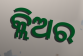
କ୍ଲିଅର